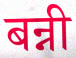
बन्नी